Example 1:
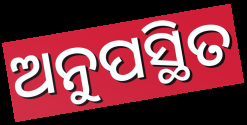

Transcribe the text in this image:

ଅନୁପସ୍ଥିତ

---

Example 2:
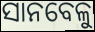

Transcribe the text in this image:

ସାନବେଳୁ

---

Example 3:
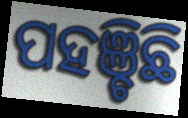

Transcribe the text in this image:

ପହଞ୍ଚିଛି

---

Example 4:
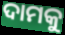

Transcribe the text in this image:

ଦାମକୁ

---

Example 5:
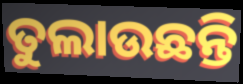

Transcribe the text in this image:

ତୁଲାଉଛନ୍ତି